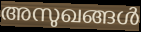
അസുഖങ്ങൾ